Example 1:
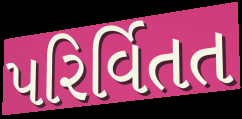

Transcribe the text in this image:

પરિર્વિતત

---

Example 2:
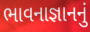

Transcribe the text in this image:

ભાવનાજ્ઞાનનું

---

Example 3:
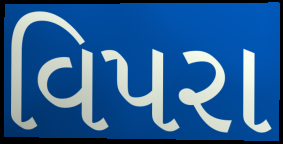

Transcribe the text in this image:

વિપરા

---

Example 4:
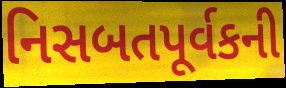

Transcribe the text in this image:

નિસબતપૂર્વકની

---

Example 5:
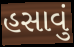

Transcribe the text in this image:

હસાવું